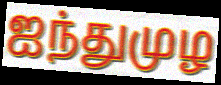
ஐந்துமுழ